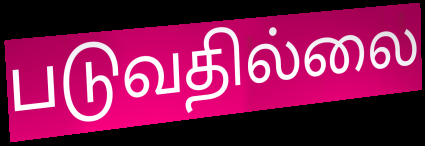
படுவதில்லை